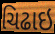
ચિઢાઇ